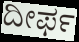
ದೀರ್ಫ